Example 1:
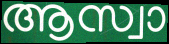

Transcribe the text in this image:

ആസ്വാ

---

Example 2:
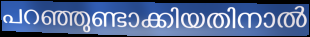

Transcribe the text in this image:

പറഞ്ഞുണ്ടാക്കിയതിനാൽ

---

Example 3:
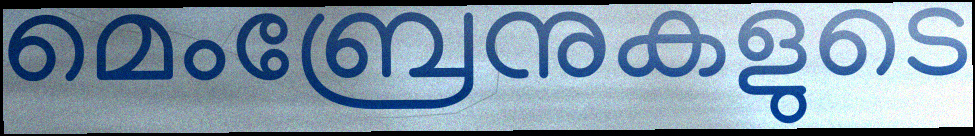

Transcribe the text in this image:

മെംബ്രേനുകളുടെ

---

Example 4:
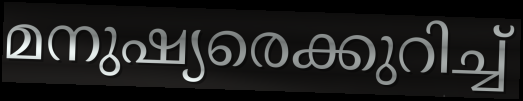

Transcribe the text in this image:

മനുഷ്യരെക്കുറിച്ച്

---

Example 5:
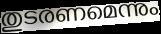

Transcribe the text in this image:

തുടരണമെന്നും